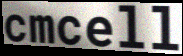
cmcell